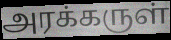
அரக்கருள்